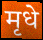
मृधे